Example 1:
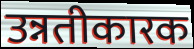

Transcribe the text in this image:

उन्नतीकारक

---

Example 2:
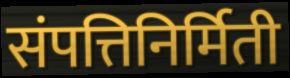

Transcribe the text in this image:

संपत्तिनिर्मिती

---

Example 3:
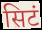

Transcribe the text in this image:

सिटं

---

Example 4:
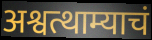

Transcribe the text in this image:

अश्वत्थाम्याचं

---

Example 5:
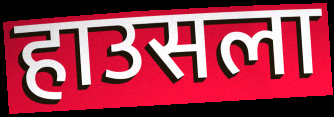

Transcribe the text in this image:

हाउसला